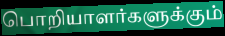
பொறியாளர்களுக்கும்